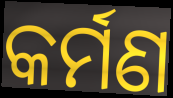
କର୍ମଣ